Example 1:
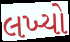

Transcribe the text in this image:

લખ્યો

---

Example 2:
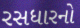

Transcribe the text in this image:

રસધારનો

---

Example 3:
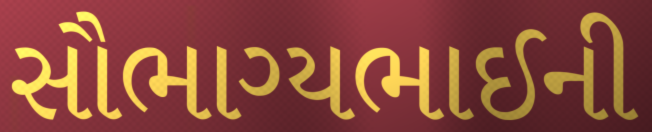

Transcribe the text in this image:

સૌભાગ્યભાઈની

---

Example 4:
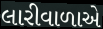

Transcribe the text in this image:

લારીવાળાએ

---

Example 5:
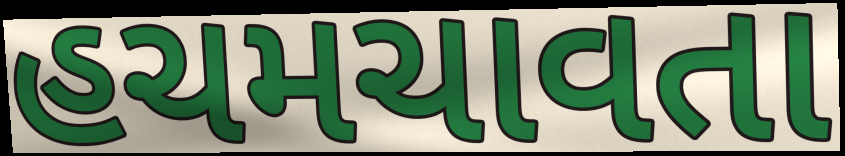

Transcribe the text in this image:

હચમચાવતા